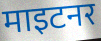
माइटनर